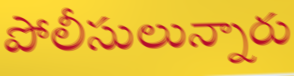
పోలీసులున్నారు